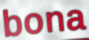
bona